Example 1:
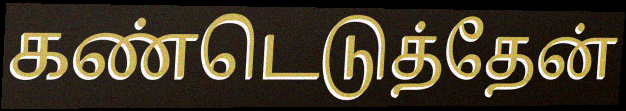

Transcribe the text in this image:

கண்டெடுத்தேன்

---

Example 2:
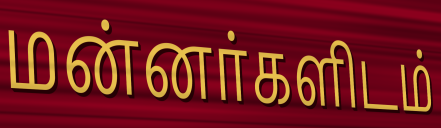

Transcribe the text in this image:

மன்னர்களிடம்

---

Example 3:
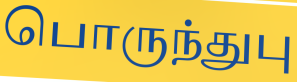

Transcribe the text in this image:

பொருந்துபு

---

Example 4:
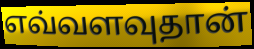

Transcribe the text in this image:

எவ்வளவுதான்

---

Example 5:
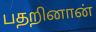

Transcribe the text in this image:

பதறினான்